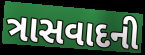
ત્રાસવાદની